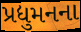
પ્રદ્યુમનના